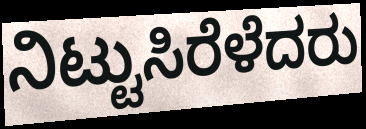
ನಿಟ್ಟುಸಿರೆಳೆದರು